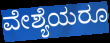
ವೇಶ್ಯೆಯರೂ